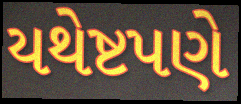
યથેષ્ટપણે